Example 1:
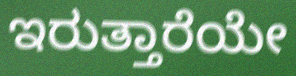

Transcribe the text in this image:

ಇರುತ್ತಾರೆಯೇ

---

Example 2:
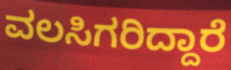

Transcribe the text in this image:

ವಲಸಿಗರಿದ್ದಾರೆ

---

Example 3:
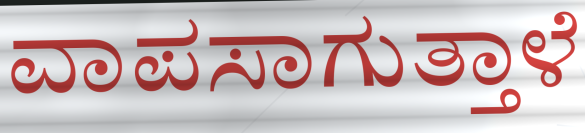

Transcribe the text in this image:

ವಾಪಸಾಗುತ್ತಾಳೆ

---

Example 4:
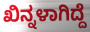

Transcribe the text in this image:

ಖಿನ್ನಳಾಗಿದ್ದೆ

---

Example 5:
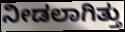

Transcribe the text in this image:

ನೀಡಲಾಗಿತ್ತು